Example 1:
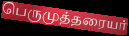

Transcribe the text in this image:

பெருமுத்தரையர்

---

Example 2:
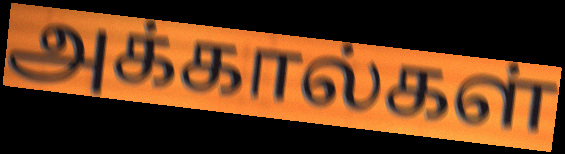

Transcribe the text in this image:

அக்கால்கள்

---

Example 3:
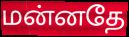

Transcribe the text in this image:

மன்னதே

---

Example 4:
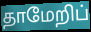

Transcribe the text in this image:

தாமேறிப்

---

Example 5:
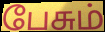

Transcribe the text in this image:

பேசும்